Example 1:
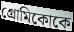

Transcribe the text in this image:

গ্রোমিকোকে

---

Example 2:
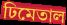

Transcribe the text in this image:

ঢিমেতাল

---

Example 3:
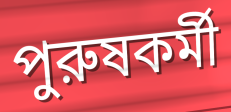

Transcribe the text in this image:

পুরুষকর্মী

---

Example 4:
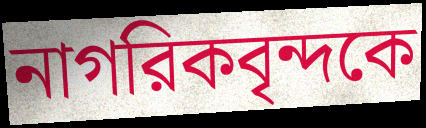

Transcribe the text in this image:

নাগরিকবৃন্দকে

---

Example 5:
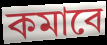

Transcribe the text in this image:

কমাবে